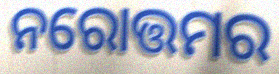
ନରୋତ୍ତମର